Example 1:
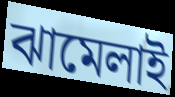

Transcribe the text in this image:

ঝামেলাই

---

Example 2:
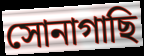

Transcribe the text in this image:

সোনাগাছি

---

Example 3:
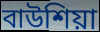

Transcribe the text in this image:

বাউশিয়া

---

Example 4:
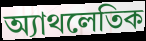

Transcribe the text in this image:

অ্যাথলেতিক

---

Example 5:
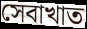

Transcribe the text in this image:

সেবাখাত